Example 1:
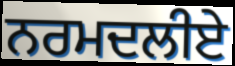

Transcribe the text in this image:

ਨਰਮਦਲੀਏ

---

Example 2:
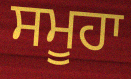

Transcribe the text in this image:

ਸਮੂਹਾ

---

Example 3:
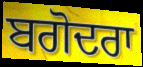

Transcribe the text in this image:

ਬਗੋਦਰਾ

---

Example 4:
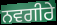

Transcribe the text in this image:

ਨਵਗੀਰੇ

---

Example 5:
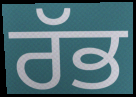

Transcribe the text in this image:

ਰੱਭ